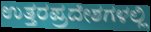
ಉತ್ತರಪ್ರದೇಶಗಳಲ್ಲಿ